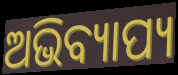
ଅଭିବ୍ୟାପ୍ୟ